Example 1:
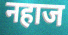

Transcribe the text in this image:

नहाज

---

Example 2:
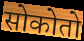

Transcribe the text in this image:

सोकोतो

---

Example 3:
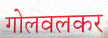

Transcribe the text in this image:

गोलवलकर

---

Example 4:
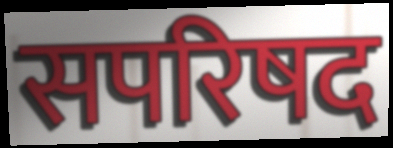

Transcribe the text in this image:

सपरिषद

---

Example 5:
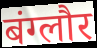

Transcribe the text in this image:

बंग्लौर